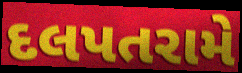
દલપતરામે